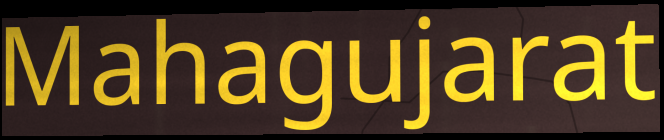
Mahagujarat